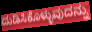
ದುಡಿಸಿಕೊಳ್ಳುವುದನ್ನು